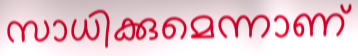
സാധിക്കുമെന്നാണ്